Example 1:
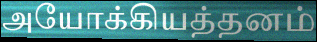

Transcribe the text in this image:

அயோக்கியத்தனம்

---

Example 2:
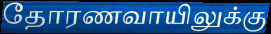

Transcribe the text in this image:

தோரணவாயிலுக்கு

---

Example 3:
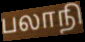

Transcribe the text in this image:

பலாநி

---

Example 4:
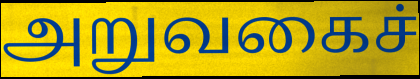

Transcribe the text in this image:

அறுவகைச்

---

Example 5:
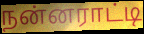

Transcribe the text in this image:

நன்னராட்டி